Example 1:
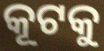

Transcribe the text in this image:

କୂଟକୁ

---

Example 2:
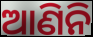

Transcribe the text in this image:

ଆଣିନି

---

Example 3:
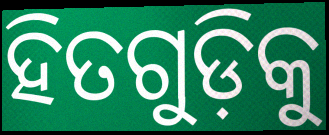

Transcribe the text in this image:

ହିତଗୁଡ଼ିକୁ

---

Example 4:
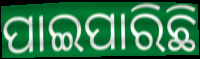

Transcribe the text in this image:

ପାଇପାରିଛି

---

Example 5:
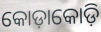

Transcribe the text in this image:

କୋଡ଼ାକୋଡ଼ି